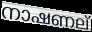
നാഷണല്